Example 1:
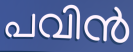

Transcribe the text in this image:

പവിൻ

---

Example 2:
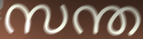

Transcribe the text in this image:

സന്ത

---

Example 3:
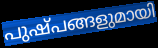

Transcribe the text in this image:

പുഷ്പങ്ങളുമായി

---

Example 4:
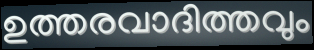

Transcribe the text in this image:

ഉത്തരവാദിത്തവും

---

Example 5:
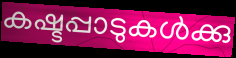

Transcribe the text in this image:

കഷ്ടപ്പാടുകൾക്കു